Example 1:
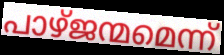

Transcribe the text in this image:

പാഴ്ജന്മമെന്ന്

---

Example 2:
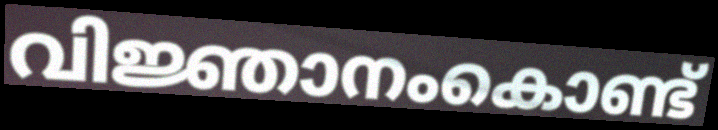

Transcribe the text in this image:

വിജ്ഞാനംകൊണ്ട്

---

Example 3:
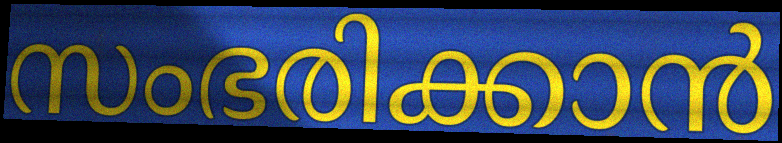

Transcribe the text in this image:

സംഭരിക്കാൻ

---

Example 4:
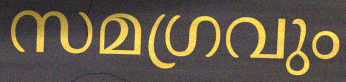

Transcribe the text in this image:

സമഗ്രവും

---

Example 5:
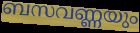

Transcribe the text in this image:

ബസവണ്ണയും